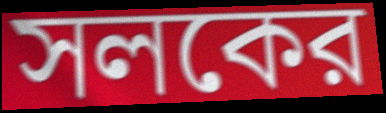
সলকের